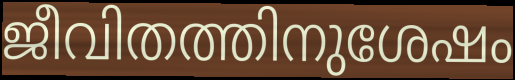
ജീവിതത്തിനുശേഷം